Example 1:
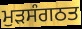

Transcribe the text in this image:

ਮੁੜਸੰਗਠਤ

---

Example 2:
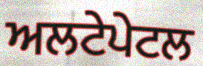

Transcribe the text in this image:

ਅਲਟੇਪੇਟਲ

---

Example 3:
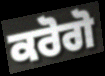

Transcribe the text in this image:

ਕਰੋਗੋ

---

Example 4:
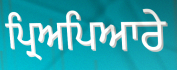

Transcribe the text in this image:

ਪ੍ਰਿਅਪਿਆਰੇ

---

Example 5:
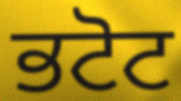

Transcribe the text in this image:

ਭਟੋਟ